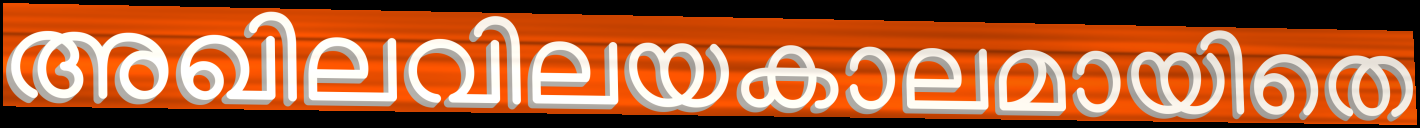
അഖിലവിലയകാലമായിതെ